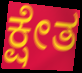
ಕ್ಷೇತ